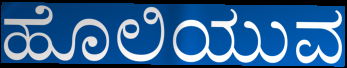
ಹೊಲಿಯುವ